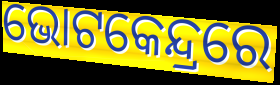
ଭୋଟକେନ୍ଦ୍ରରେ